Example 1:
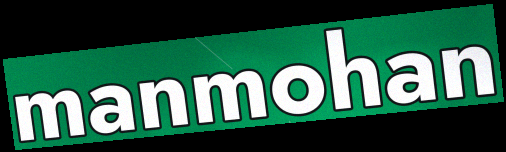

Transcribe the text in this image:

manmohan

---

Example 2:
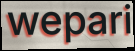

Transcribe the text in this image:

wepari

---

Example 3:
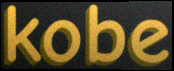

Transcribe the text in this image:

kobe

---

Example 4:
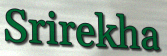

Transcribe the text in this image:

Srirekha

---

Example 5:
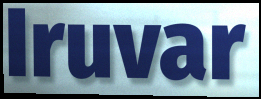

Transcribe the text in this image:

Iruvar